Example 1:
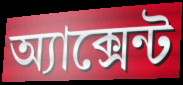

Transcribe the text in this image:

অ্যাক্সেন্ট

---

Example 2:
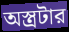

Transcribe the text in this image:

অস্ত্রটার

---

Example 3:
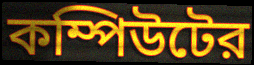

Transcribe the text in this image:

কম্পিউটের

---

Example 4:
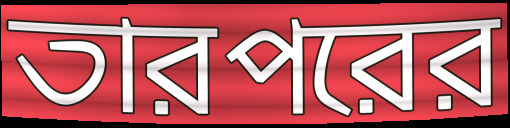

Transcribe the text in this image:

তারপরের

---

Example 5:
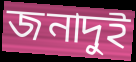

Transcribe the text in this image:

জনাদুই